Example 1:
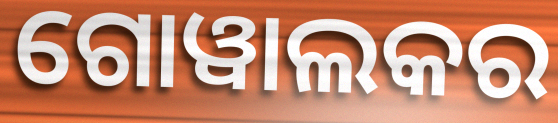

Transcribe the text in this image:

ଗୋୱାଲକର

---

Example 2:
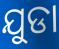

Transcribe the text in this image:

ଯୁଡା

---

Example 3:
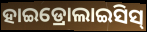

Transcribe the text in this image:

ହାଇଡ୍ରୋଲାଇସିସ୍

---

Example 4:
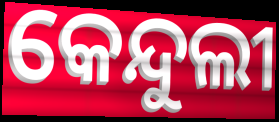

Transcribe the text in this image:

କେନ୍ଦୁଲୀ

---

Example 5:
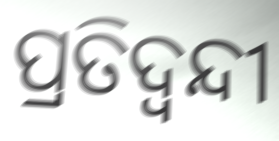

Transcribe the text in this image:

ପ୍ରତିଦ୍ଵନ୍ଦୀ